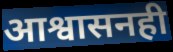
आश्वासनही